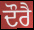
ਦੌਰੈ